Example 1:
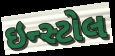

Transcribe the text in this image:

ઇન્સ્ટોલ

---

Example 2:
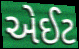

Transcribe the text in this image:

એઈટ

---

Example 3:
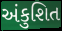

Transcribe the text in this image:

અંકુશિત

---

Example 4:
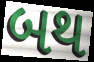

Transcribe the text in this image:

બથ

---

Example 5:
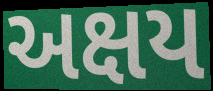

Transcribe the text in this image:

અક્ષય